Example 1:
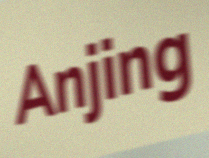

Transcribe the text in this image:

Anjing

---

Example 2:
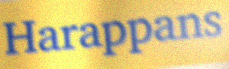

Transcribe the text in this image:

Harappans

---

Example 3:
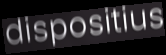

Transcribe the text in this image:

dispositius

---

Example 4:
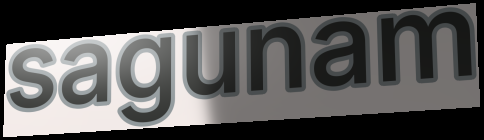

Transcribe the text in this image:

sagunam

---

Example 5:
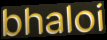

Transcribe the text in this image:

bhaloi